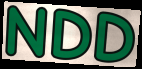
NDD